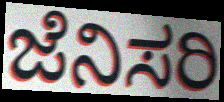
ಜೆನಿಸರಿ